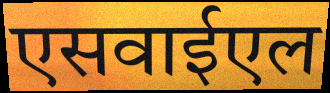
एसवाईएल